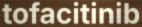
tofacitinib